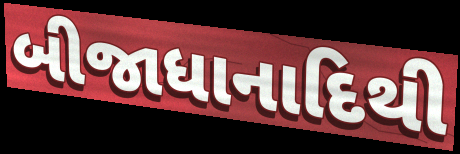
બીજાધાનાદિથી